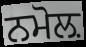
ਨਮੋਲ਼